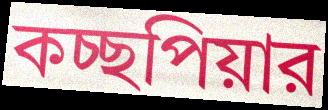
কচ্ছপিয়ার